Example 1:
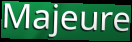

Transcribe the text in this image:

Majeure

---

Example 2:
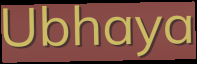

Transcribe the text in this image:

Ubhaya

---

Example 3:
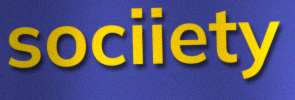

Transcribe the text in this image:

sociiety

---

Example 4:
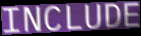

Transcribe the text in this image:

INCLUDE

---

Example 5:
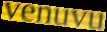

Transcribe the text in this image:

venuvu